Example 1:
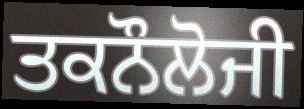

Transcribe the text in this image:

ਤਕਨੌਲੋਜੀ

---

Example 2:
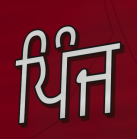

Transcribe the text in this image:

ਪਿੰਜ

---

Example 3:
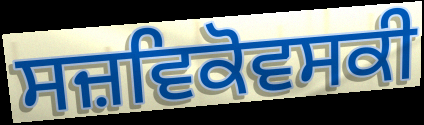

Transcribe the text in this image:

ਸਜ਼ਵਿਕੋਵਸਕੀ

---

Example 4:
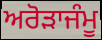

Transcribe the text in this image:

ਅਰੋੜਾਜੰਮੂ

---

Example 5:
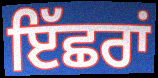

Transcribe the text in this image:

ਇੱਛਰਾਂ